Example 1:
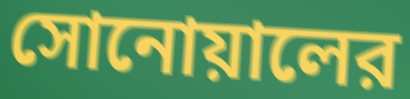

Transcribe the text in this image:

সোনোয়ালের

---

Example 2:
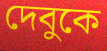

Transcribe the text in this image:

দেবুকে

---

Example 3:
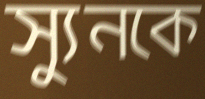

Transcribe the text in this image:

স্যুনকে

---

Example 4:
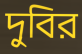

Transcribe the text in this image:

দুবির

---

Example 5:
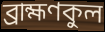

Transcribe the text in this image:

ব্রাহ্মণকুল